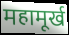
महामूर्ख